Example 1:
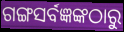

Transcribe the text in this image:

ଗଙ୍ଗସର୍ବଜ୍ଞଙ୍କଠାରୁ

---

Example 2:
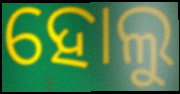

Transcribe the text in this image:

ହୋଲୁ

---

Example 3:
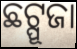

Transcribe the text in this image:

ଛଟ୍ପୂଜା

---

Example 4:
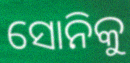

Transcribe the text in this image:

ସୋନିକୁ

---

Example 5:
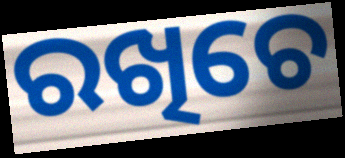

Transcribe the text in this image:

ରଖିଚେ